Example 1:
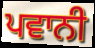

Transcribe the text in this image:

ਪਵਾਨੀ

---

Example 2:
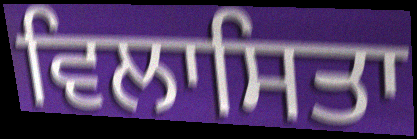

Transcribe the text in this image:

ਵਿਲਾਸਿਤਾ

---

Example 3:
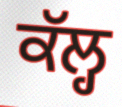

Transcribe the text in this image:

ਕੱਲ੍ਹ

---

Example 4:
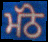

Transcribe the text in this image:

ਮੱਠੇ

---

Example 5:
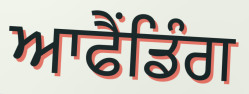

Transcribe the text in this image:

ਆਫੈਂਡਿੰਗ